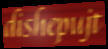
dishepujt